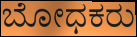
ಬೋಧಕರು